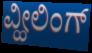
ವ್ಹೀಲಿಂಗ್